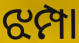
ଝମ୍ପା